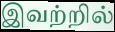
இவற்றில்